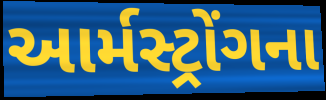
આર્મસ્ટ્રોંગના